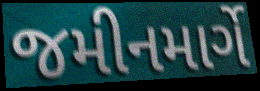
જમીનમાર્ગે